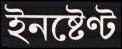
ইনষ্টেণ্ট